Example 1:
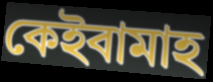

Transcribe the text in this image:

কেইবামাহ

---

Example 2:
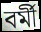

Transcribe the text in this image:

বৰ্মী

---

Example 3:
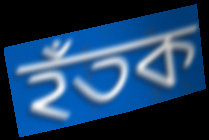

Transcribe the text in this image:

হঁতক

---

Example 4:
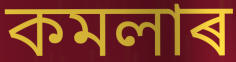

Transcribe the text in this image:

কমলাৰ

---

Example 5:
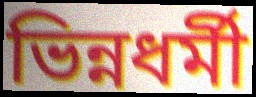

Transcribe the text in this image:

ভিন্নধৰ্মী